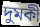
দুমকী